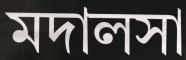
মদালসা